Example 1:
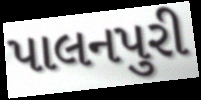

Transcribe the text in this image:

પાલનપુરી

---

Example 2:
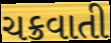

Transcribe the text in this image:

ચક્રવાતી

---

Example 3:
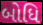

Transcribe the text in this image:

બોધિ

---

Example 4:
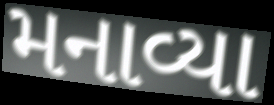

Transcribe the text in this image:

મનાવ્યા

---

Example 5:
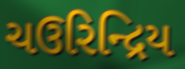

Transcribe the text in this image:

ચઉરિન્દ્રિય